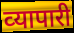
व्‍यापारी